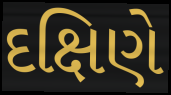
દક્ષિણે